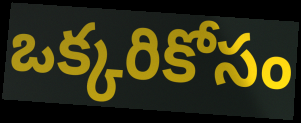
ఒక్కరికోసం